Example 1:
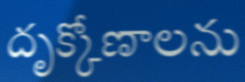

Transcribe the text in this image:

దృక్కోణాలను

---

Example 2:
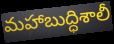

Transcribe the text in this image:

మహాబుద్ధిశాలీ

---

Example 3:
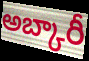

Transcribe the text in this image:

అబ్కారీ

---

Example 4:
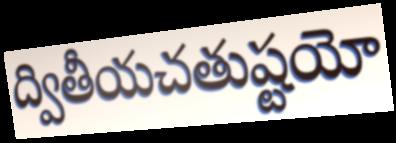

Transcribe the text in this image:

ద్వితీయచతుష్టయో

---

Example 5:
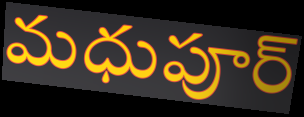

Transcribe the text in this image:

మధుపూర్